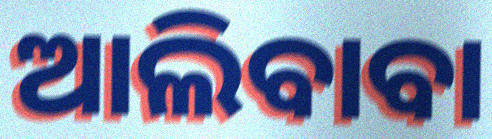
ଆଲିବାବା